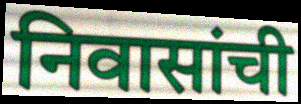
निवासांची